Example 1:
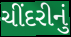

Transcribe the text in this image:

ચીંદરીનું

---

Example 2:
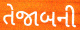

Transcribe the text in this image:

તેજાબની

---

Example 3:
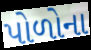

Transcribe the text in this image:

પોળોના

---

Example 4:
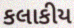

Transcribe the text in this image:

કલાકીય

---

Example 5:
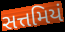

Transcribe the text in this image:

સત્તમિયં